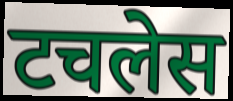
टचलेस